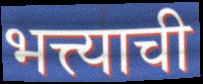
भत्त्याची